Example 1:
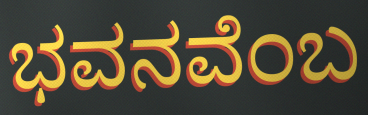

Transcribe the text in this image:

ಭವನವೆಂಬ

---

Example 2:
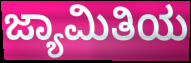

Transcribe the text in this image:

ಜ್ಯಾಮಿತಿಯ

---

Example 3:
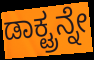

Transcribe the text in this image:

ಡಾಕ್ಟ್ರನ್ನೇ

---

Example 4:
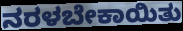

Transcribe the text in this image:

ನರಳಬೇಕಾಯಿತು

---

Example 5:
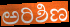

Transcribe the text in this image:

ಅರಿಶಿಣ